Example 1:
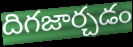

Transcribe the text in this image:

దిగజార్చడం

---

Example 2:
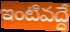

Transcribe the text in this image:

ఇంటివద్దే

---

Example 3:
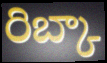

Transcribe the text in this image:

రిబ్కా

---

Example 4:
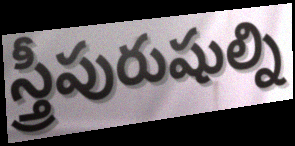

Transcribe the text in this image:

స్త్రీపురుషుల్ని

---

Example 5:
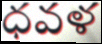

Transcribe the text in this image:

ధవళ